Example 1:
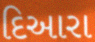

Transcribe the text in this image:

દિઆરા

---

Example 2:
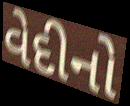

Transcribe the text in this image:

વેદીનો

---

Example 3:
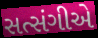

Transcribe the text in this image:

સત્સંગીએ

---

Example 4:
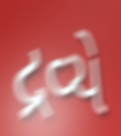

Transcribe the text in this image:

દ્રવ્યે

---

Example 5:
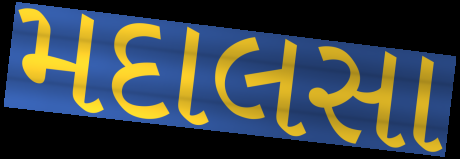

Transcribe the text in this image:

મદાલસા